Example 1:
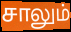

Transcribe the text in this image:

சாலும்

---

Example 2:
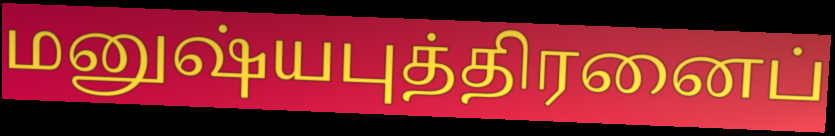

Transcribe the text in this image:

மனுஷ்யபுத்திரனைப்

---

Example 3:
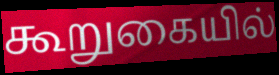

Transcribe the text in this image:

கூறுகையில்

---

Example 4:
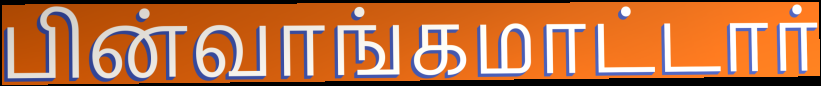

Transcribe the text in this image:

பின்வாங்கமாட்டார்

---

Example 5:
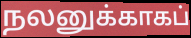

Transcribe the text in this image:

நலனுக்காகப்